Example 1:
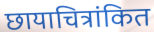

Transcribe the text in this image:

छायाचित्रांकित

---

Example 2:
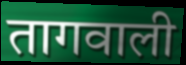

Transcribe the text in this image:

तागवाली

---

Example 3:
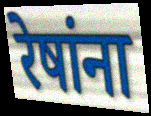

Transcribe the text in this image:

रेषांना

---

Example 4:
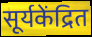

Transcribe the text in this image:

सूर्यकेंद्रित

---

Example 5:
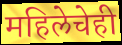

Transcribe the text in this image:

महिलेचेही